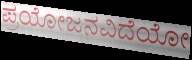
ಪ್ರಯೋಜನವಿದೆಯೋ